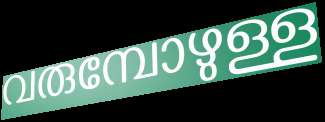
വരുമ്പോഴുള്ള